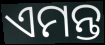
ଏମନ୍ତ